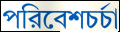
পরিবেশচর্চা